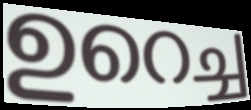
ഉറെച്ച